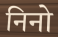
निनो